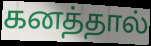
கனத்தால்